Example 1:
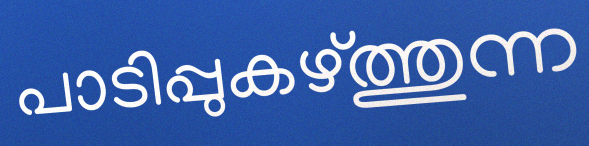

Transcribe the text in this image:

പാടിപ്പുകഴ്ത്തുന്ന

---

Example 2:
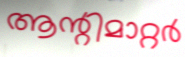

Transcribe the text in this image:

ആന്റിമാറ്റർ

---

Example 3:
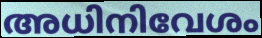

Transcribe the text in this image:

അധിനിവേശം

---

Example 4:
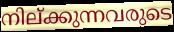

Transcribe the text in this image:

നില്ക്കുന്നവരുടെ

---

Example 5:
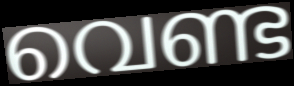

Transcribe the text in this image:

വെണ്ട